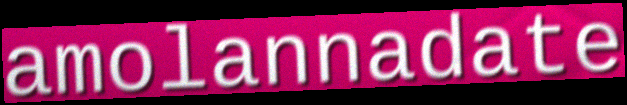
amolannadate